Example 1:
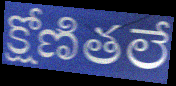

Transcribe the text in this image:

క్షోణితలే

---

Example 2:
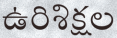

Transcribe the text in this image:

ఉరిశిక్షల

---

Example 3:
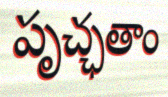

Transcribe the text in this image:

పృచ్ఛతాం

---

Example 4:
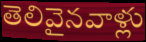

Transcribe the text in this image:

తెలివైనవాళ్లు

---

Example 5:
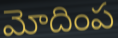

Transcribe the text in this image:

మోదింప